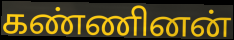
கண்ணினன்